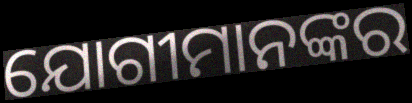
ଯୋଗୀମାନଙ୍କର